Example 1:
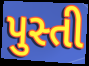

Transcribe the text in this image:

પુસ્તી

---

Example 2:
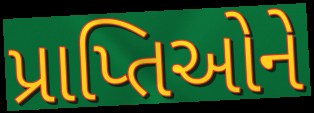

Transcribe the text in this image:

પ્રાપ્તિઓને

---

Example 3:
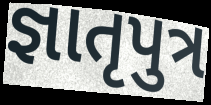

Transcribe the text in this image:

જ્ઞાતૃપુત્ર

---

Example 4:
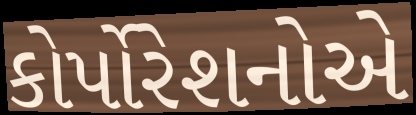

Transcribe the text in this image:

કોર્પોરેશનોએ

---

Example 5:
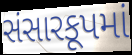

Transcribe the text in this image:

સંસારકૂપમાં